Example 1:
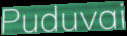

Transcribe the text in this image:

Puduvai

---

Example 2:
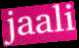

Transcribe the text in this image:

jaali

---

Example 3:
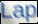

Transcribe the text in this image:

Lap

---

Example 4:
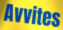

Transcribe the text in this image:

Avvites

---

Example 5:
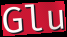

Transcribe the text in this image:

Glu